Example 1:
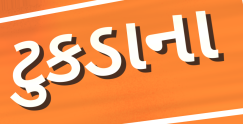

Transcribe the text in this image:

ટુકડાના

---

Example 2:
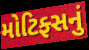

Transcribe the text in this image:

મોટિફ્સનું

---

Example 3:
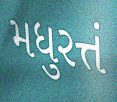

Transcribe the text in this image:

મધુરત્તં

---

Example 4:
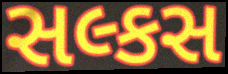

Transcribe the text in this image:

સલ્કસ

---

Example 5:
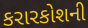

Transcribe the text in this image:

કરારકોશની